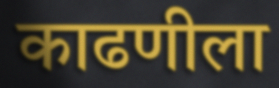
काढणीला